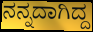
ನನ್ನದಾಗಿದ್ದ